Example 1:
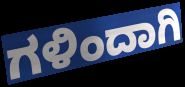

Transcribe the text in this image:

ಗಳಿಂದಾಗಿ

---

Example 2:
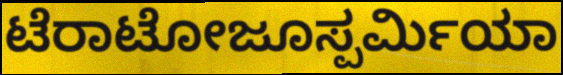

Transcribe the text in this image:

ಟೆರಾಟೋಜೂಸ್ಪರ್ಮಿಯಾ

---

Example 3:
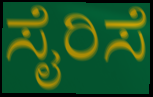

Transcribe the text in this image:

ಸೈರಿಸೆ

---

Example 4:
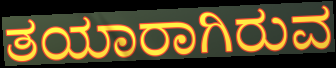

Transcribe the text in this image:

ತಯಾರಾಗಿರುವ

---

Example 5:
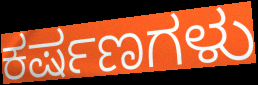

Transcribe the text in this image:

ಕರ್ಷಣಗಳು